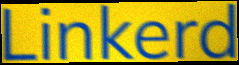
Linkerd